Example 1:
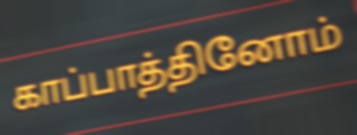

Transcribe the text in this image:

காப்பாத்தினோம்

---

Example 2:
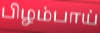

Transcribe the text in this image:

பிழம்பாய்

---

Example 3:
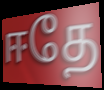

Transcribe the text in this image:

ஈதே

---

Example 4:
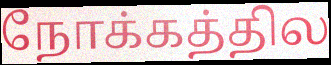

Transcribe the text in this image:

நோக்கத்தில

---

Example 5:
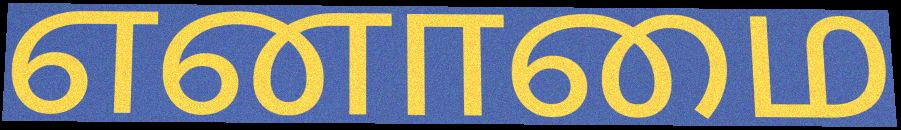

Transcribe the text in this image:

எனாமை